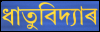
ধাতুবিদ্যাৰ